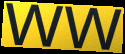
ww